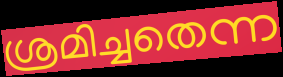
ശ്രമിച്ചതെന്ന